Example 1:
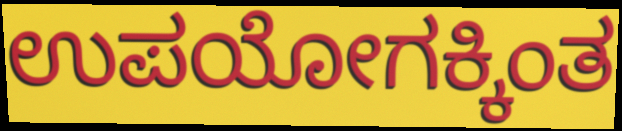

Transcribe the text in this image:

ಉಪಯೋಗಕ್ಕಿಂತ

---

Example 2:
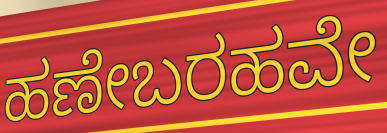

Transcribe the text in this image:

ಹಣೇಬರಹವೇ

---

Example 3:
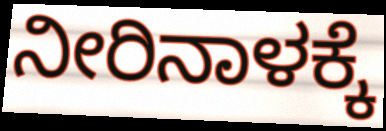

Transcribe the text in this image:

ನೀರಿನಾಳಕ್ಕೆ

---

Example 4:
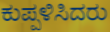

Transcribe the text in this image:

ಕುಪ್ಪಳಿಸಿದರು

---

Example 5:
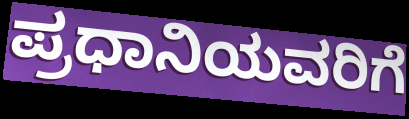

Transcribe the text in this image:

ಪ್ರಧಾನಿಯವರಿಗೆ